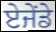
ਏਜੇਂਡੇ